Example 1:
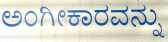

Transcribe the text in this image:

ಅಂಗೀಕಾರವನ್ನು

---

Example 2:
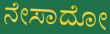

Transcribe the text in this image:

ನೇಸಾದೋ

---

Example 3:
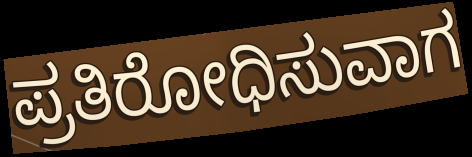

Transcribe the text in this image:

ಪ್ರತಿರೋಧಿಸುವಾಗ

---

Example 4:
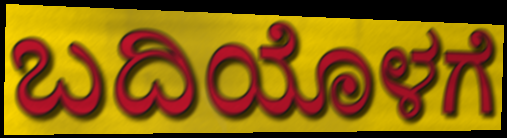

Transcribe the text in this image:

ಬದಿಯೊಳಗೆ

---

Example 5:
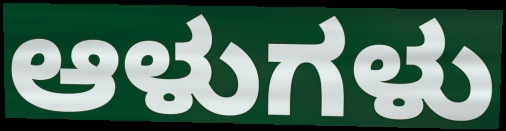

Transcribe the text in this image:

ಆಳುಗಳು